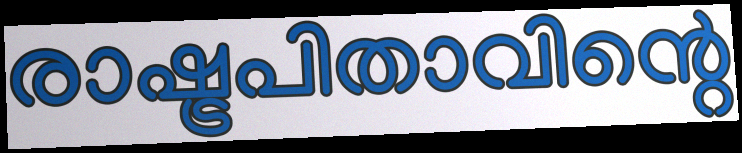
രാഷ്ട്രപിതാവിന്റെ